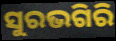
ସୁରଭଗିରି